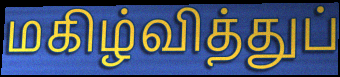
மகிழ்வித்துப்